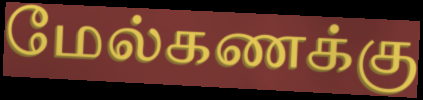
மேல்கணக்கு